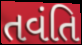
તવંતિ